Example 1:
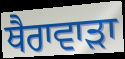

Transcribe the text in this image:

ਥੈਰਾਵਾੜਾ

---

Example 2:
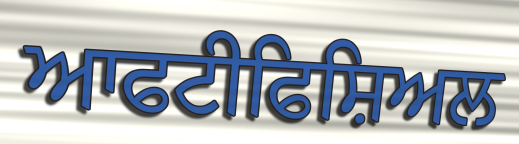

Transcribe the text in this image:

ਆਫਟੀਫਿਸ਼ਿਅਲ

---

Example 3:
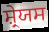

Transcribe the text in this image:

ਸ਼੍ਰੇਯਸ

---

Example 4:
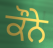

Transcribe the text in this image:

ਕੌਨੇ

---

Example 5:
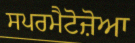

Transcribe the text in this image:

ਸਪਰਮੈਟੋਜ਼ੋਆ